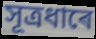
সূত্ৰধাৰে